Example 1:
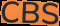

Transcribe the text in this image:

CBS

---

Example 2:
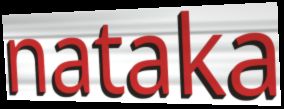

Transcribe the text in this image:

nataka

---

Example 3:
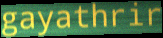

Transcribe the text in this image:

gayathrir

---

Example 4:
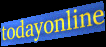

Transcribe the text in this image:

todayonline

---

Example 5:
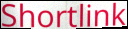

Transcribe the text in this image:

Shortlink